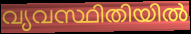
വ്യവസ്ഥിതിയിൽ